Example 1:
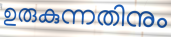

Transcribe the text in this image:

ഉരുകുന്നതിനും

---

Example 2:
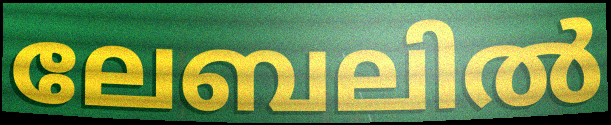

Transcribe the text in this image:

ലേബലിൽ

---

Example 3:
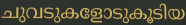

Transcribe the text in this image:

ചുവടുകളോടുകൂടിയ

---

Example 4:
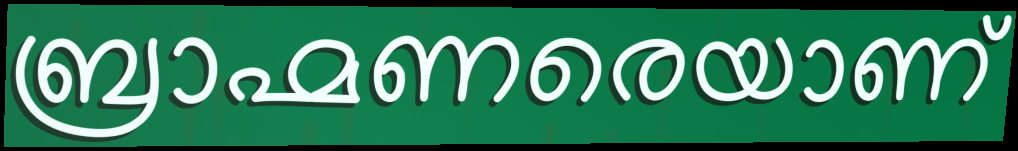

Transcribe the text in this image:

ബ്രാഹ്മണരെയാണ്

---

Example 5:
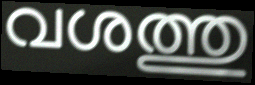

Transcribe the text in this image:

വശത്തു